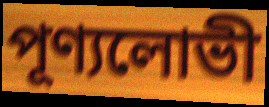
পূণ্যলোভী